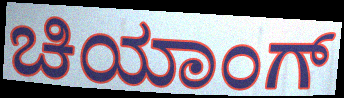
ಚಿಯಾಂಗ್